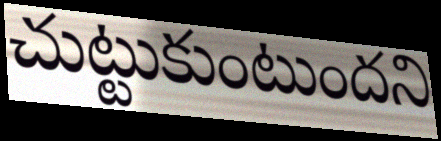
చుట్టుకుంటుందని